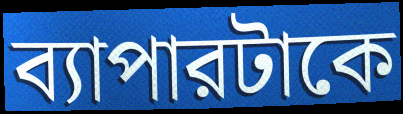
ব্যাপারটাকে